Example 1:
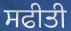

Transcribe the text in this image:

ਸਫੀਤੀ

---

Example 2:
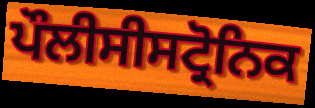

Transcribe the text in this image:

ਪੌਲੀਸੀਸਟ੍ਰੋਨਿਕ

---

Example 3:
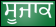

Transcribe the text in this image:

ਸੂਜਾਕ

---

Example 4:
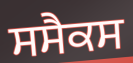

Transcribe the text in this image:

ਸਸੈਕਸ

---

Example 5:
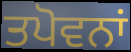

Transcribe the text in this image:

ਤਪੋਵਨਾਂ